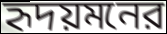
হৃদয়মনের